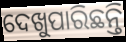
ଦେଖୁପାରିଛନ୍ତି